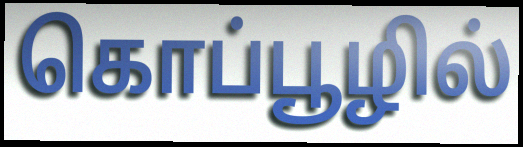
கொப்பூழில்